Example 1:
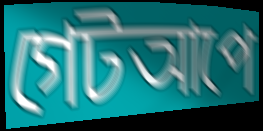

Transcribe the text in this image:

গেটআপে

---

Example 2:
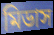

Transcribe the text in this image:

মিডাস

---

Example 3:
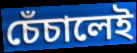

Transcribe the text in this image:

চেঁচালেই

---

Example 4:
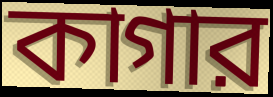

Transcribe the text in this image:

কাগার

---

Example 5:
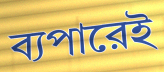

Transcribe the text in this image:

ব্যপারেই